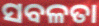
ସବଳତା